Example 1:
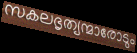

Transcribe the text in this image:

സകലഭൃത്യന്മാരോടും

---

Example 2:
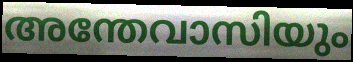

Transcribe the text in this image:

അന്തേവാസിയും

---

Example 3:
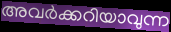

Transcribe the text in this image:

അവർക്കറിയാവുന്ന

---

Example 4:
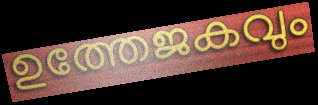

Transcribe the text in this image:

ഉത്തേജകവും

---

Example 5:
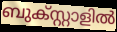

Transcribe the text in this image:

ബുക്സ്റ്റാളിൽ